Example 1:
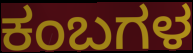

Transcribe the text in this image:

ಕಂಬಗಳ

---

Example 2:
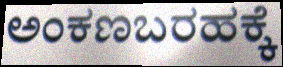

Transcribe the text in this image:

ಅಂಕಣಬರಹಕ್ಕೆ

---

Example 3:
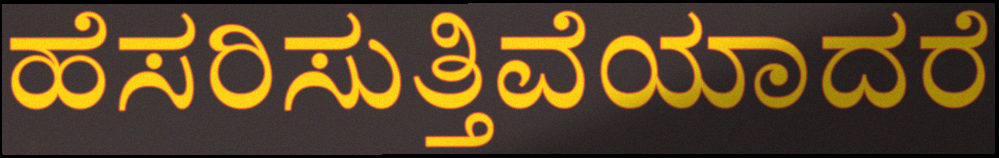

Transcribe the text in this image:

ಹೆಸರಿಸುತ್ತಿವೆಯಾದರೆ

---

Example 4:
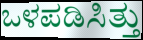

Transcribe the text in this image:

ಒಳಪಡಿಸಿತ್ತು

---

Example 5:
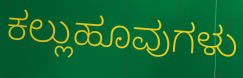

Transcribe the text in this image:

ಕಲ್ಲುಹೂವುಗಳು